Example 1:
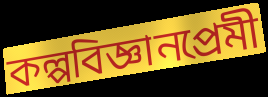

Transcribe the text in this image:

কল্পবিজ্ঞানপ্রেমী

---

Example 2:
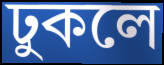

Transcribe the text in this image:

ঢুকলে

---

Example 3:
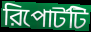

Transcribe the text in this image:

রিপোর্টটি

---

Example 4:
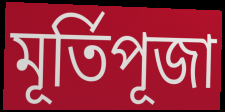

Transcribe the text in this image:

মূর্তিপূজা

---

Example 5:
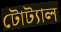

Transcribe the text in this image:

টোট্যাল